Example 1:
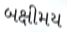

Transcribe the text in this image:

બક્ષીમય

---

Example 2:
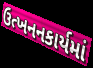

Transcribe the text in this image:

ઉત્ખનનકાર્યમાં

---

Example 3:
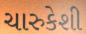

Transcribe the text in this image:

ચારુકેશી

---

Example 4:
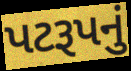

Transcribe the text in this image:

પટરૂપનું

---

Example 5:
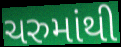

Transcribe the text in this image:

ચરુમાંથી